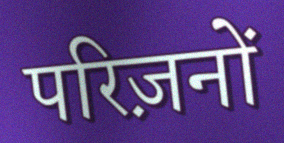
परिज़नों